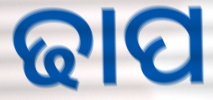
ଢାପ